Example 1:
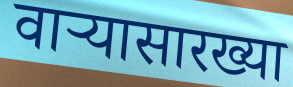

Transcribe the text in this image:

वाऱ्यासारख्या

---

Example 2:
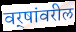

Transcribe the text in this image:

वर्षांवरील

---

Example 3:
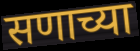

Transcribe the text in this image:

सणाच्या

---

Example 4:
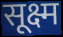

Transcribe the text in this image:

सूक्ष्म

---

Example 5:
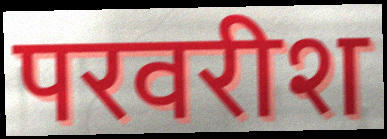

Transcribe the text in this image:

परवरीश